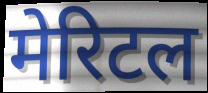
मेरिटल